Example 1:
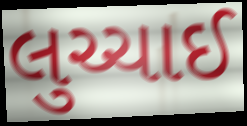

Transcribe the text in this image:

લુચ્ચાઈ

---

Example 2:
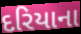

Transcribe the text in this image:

દરિયાના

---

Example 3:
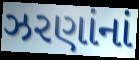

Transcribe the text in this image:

ઝરણાંનાં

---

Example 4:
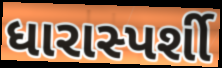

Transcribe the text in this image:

ધારાસ્પર્શી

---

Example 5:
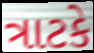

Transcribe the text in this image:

ત્રાટકે